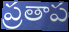
ప్రతాప